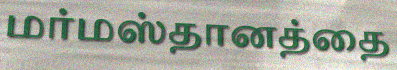
மர்மஸ்தானத்தை